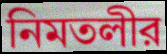
নিমতলীর